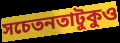
সচেতনতাটুকুও